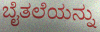
ಬೈತಲೆಯನ್ನು